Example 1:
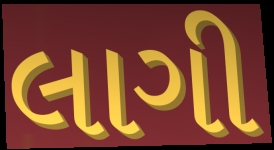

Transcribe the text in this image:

લાગી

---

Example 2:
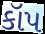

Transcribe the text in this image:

કૉપ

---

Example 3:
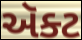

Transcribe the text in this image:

ઍૅક્ટ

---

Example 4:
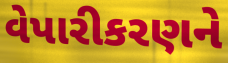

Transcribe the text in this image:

વેપારીકરણને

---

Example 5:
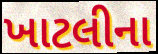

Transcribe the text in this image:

ખાટલીના